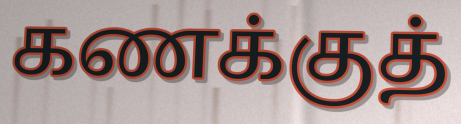
கணக்குத்